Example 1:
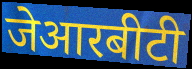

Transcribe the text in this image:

जेआरबीटी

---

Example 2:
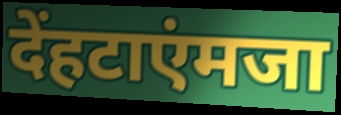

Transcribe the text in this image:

देंहटाएंमजा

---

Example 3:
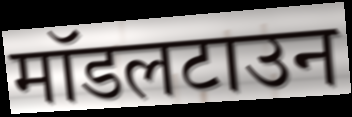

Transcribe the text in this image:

मॉडलटाउन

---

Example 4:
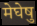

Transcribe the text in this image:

मेघेषु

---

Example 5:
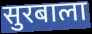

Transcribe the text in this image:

सुरबाला